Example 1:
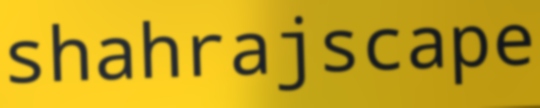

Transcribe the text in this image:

shahrajscape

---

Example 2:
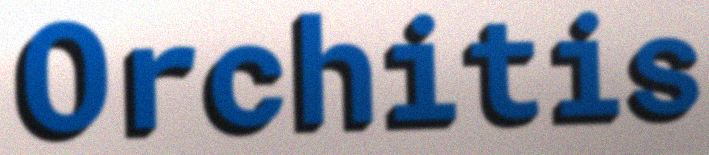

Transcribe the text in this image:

Orchitis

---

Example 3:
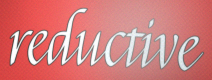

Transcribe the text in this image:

reductive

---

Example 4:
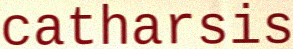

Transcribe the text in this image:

catharsis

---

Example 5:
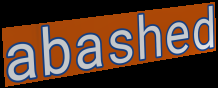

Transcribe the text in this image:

abashed